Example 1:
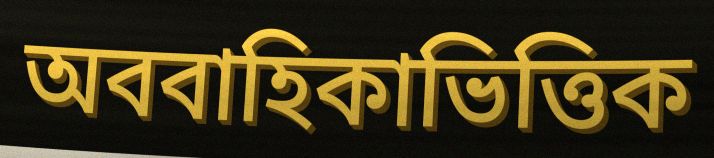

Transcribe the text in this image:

অববাহিকাভিত্তিক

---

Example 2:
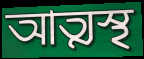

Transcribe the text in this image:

আত্মস্থ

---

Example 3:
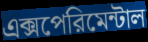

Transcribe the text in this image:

এক্সপেরিমেন্টাল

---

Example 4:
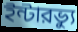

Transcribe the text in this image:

ইন্টারভ্যু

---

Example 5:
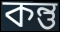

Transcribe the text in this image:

কন্তু